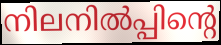
നിലനിൽപ്പിന്റെ